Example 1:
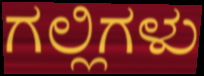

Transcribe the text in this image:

ಗಲ್ಲಿಗಳು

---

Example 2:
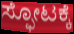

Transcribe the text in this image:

ಸ್ಫೋಟಕ್ಕೆ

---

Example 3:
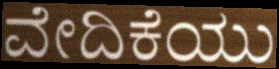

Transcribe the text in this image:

ವೇದಿಕೆಯು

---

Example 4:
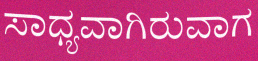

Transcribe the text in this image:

ಸಾಧ್ಯವಾಗಿರುವಾಗ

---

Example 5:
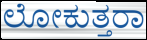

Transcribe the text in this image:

ಲೋಕುತ್ತರಾ